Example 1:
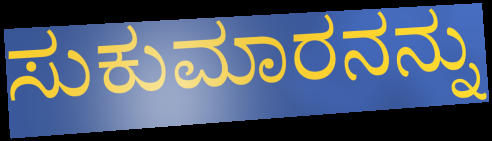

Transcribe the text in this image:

ಸುಕುಮಾರನನ್ನು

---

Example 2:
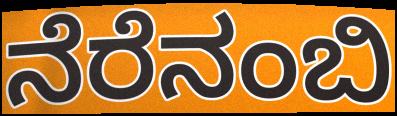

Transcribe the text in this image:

ನೆರೆನಂಬಿ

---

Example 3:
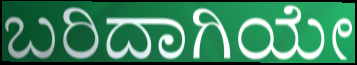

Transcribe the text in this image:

ಬರಿದಾಗಿಯೇ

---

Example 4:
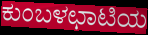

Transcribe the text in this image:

ಕುಂಬಳಛಾಟಿಯ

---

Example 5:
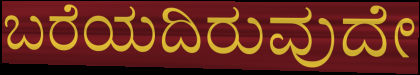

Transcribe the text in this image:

ಬರೆಯದಿರುವುದೇ